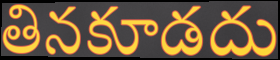
తినకూడదు